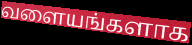
வளையங்களாக